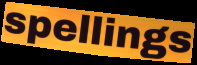
spellings